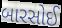
બારસોઈ